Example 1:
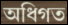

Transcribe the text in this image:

অধিগত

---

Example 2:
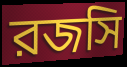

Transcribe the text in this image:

রজসি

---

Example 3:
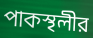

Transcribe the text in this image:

পাকস্থলীর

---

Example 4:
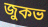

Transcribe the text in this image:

জুকভ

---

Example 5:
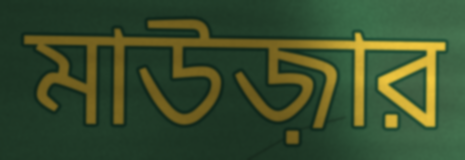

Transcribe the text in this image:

মাউজ়ার